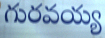
గురవయ్య